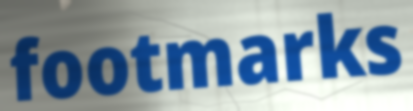
footmarks